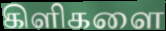
கிளிகளை